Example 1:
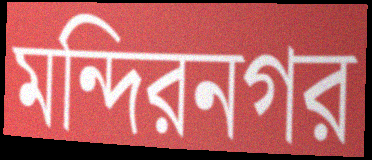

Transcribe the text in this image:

মন্দিরনগর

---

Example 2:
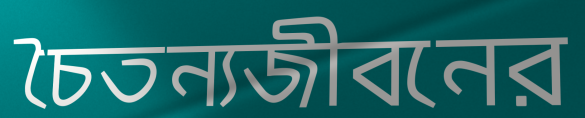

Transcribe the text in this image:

চৈতন্যজীবনের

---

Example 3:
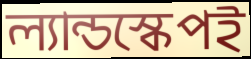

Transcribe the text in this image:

ল্যান্ডস্কেপই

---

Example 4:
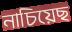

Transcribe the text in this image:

নাচিয়েছ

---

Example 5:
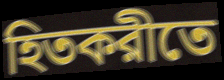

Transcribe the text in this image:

হিতকরীতে